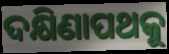
ଦକ୍ଷିଣାପଥକୁ